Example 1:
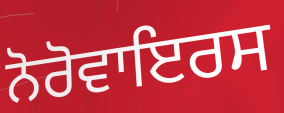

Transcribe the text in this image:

ਨੋਰੋਵਾਇਰਸ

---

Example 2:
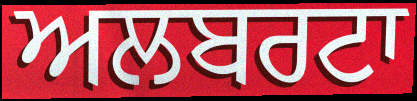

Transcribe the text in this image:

ਅਲਬਰਟਾ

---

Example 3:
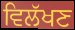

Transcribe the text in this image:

ਵਿਲੱਖਣ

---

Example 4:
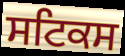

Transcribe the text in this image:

ਸਟਿਕਸ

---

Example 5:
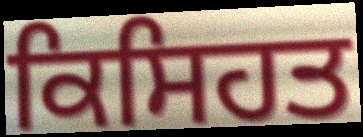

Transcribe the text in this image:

ਕਿਸਿਹਤ